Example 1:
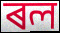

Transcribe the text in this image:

ৰল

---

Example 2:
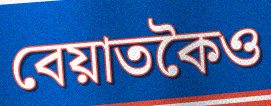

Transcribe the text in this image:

বেয়াতকৈও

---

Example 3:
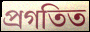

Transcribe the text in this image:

প্ৰগতিত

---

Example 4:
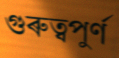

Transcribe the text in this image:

গুৰুত্বপুৰ্ণ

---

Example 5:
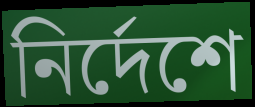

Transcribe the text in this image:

নিৰ্দেশে